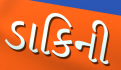
ડાકિની